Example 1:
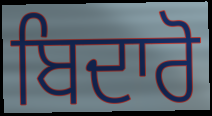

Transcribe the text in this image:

ਬਿਦਾਰੋ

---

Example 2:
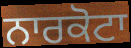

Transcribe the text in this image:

ਨਾਰਕੋਟਾ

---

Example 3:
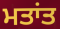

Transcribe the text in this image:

ਮਤਾਂਤ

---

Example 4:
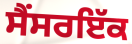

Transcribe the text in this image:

ਸੈਂਸਰਇੱਕ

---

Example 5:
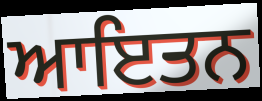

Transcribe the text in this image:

ਆਇਤਨ